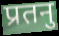
प्रतनु